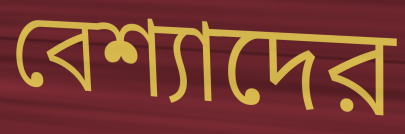
বেশ্যাদের